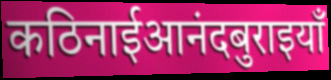
कठिनाईआनंदबुराइयाँ